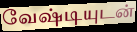
வேஷ்டியுடன்